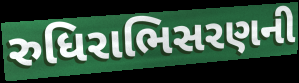
રુધિરાભિસરણની